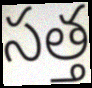
సత్త